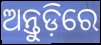
ଅନ୍ତୁଡ଼ିରେ